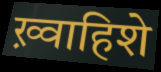
ख़्वाहिशे